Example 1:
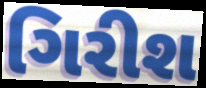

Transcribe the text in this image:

ગિરીશ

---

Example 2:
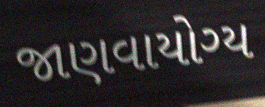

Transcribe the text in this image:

જાણવાયોગ્ય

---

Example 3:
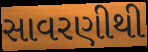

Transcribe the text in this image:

સાવરણીથી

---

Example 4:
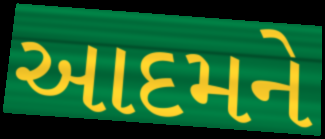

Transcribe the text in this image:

આદમને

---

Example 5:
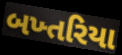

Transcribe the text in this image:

બખ્તરિયા